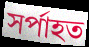
সর্পাহত